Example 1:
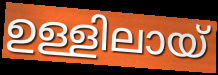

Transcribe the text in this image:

ഉള്ളിലായ്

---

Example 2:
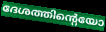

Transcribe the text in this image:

ദേശത്തിന്റെയോ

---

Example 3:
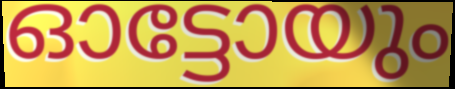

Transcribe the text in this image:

ഓട്ടോയും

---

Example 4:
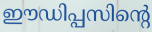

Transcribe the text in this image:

ഈഡിപ്പസിന്റെ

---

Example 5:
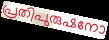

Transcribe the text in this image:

പ്രതിപുരുഷനോ